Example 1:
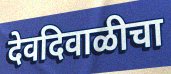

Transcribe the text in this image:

देवदिवाळीचा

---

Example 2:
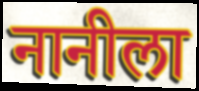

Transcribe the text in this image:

नानीला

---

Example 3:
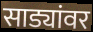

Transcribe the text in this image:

साड्यांवर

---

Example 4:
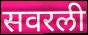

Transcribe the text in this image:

सवरली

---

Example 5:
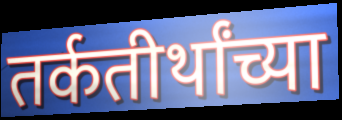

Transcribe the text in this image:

तर्कतीर्थांच्या